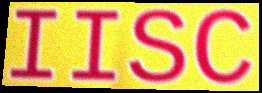
IISC